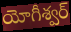
యోగీశ్వర్